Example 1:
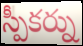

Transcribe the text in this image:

స్పీకర్ను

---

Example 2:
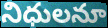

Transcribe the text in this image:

నిధులనూ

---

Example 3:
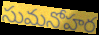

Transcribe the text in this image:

సుమనోహర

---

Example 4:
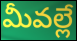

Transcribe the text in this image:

మీవల్లే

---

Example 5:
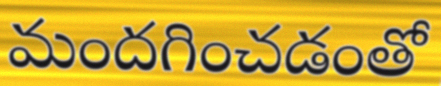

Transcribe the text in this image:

మందగించడంతో